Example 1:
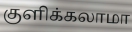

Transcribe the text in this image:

குளிக்கலாமா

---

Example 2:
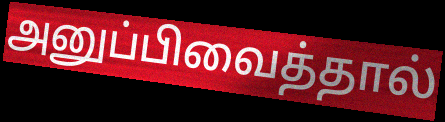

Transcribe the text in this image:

அனுப்பிவைத்தால்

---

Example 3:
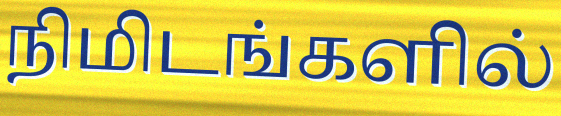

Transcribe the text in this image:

நிமிடங்களில்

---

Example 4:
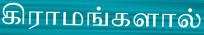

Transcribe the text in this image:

கிராமங்களால்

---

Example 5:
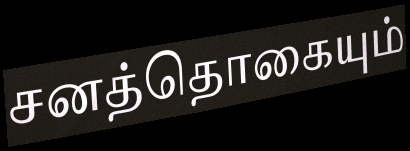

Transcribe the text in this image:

சனத்தொகையும்